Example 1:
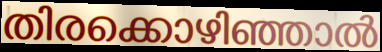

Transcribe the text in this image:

തിരക്കൊഴിഞ്ഞാൽ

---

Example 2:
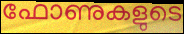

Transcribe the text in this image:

ഫോണുകളുടെ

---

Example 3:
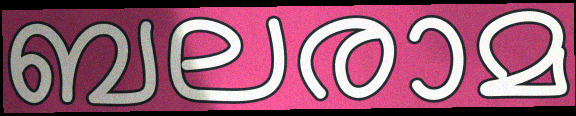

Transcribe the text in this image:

ബലരാമ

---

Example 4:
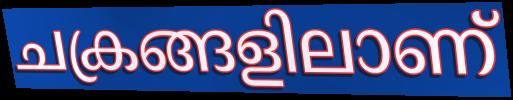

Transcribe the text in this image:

ചക്രങ്ങളിലാണ്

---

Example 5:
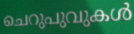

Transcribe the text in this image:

ചെറുപുവുകൾ